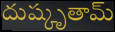
దుష్కృతామ్